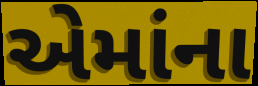
એમાંના